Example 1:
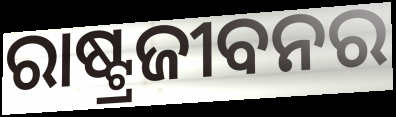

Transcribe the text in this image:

ରାଷ୍ଟ୍ରଜୀବନର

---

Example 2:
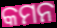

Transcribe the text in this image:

କମନ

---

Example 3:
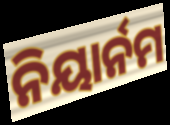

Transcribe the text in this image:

ନିୟାର୍ନମ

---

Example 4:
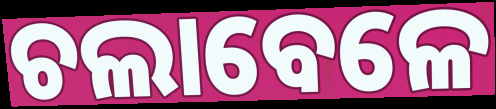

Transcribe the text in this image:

ଚଲାବେଳେ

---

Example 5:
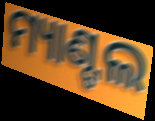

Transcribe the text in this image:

ମ୍ୟାଣ୍ଟଲ